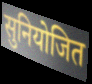
सुनियोजित